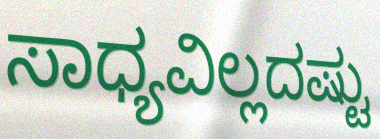
ಸಾಧ್ಯವಿಲ್ಲದಷ್ಟು